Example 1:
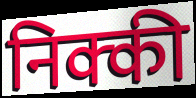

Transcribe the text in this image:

निक्‍की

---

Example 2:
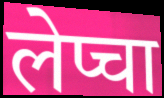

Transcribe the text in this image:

लेप्चा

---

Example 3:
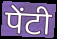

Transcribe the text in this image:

पेंटी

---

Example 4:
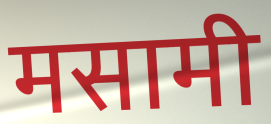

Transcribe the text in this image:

मसामी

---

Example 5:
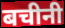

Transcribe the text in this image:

बचीनी